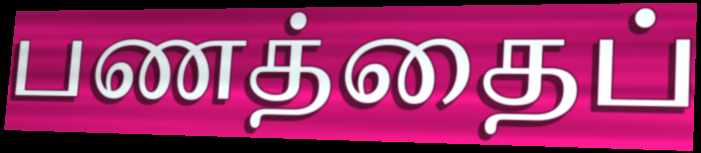
பணத்தைப்